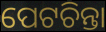
ପେଟଚିନ୍ତା